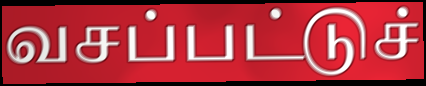
வசப்பட்டுச்